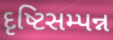
દૃષ્ટિસમ્પન્ન